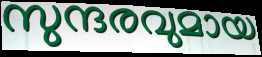
സുന്ദരവുമായ